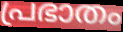
പ്രഭാതം